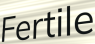
Fertile